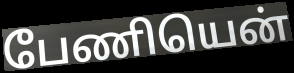
பேணியென்